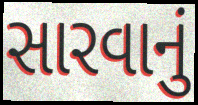
સારવાનું